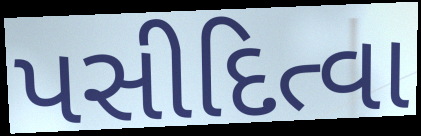
પસીદિત્વા